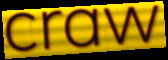
craw